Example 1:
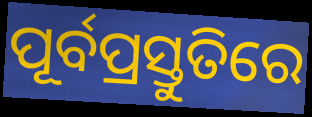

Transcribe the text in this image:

ପୂର୍ବପ୍ରସ୍ତୁତିରେ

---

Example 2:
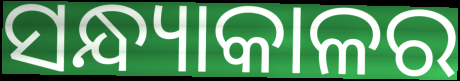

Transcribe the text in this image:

ସନ୍ଧ୍ୟାକାଳର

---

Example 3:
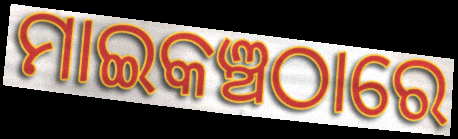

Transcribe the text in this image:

ମାଇକଞ୍ଚଠାରେ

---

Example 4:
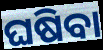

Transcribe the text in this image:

ଘଷିବା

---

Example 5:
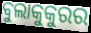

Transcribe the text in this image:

ବୁଲାକୁକୁରର